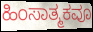
ಹಿಂಸಾತ್ಮಕವೂ